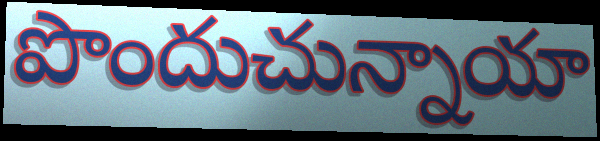
పొందుచున్నాయా